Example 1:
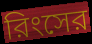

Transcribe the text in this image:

রিংসের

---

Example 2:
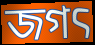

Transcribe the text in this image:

জগৎ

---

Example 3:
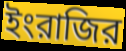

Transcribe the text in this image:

ইংরাজির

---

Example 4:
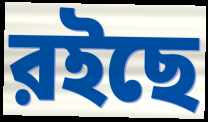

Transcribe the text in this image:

রইছে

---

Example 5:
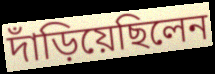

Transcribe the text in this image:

দাঁড়িয়েছিলেন